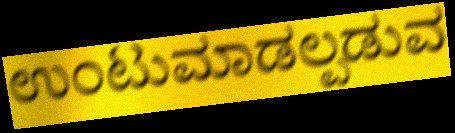
ಉಂಟುಮಾಡಲ್ಪಡುವ